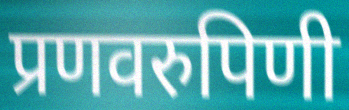
प्रणवरुपिणी